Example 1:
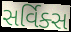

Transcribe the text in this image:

સર્વિક્સ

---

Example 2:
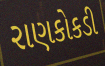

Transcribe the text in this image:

રાણકોકડી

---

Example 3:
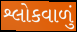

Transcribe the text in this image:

શ્લોકવાળું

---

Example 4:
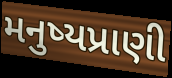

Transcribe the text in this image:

મનુષ્યપ્રાણી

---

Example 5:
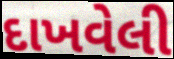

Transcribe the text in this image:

દાખવેલી